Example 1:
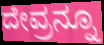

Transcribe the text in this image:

ದೇವ್ರನ್ನೂ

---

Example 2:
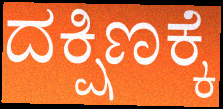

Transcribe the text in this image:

ದಕ್ಷಿಣಕ್ಕೆ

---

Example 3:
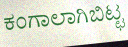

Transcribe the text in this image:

ಕಂಗಾಲಾಗಿಬಿಟ್ಟ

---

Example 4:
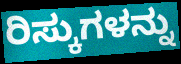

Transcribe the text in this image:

ರಿಸ್ಕುಗಳನ್ನು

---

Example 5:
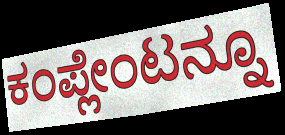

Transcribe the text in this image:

ಕಂಪ್ಲೇಂಟನ್ನೂ